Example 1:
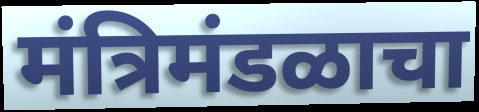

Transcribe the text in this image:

मंत्रिमंडळाचा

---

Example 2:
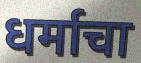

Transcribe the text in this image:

धर्माचा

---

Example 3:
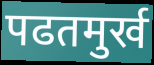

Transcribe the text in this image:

पढतमुर्ख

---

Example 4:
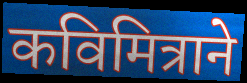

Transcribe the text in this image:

कविमित्राने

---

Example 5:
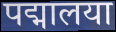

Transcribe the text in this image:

पद्मालया